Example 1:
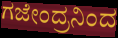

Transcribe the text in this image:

ಗಜೇಂದ್ರನಿಂದ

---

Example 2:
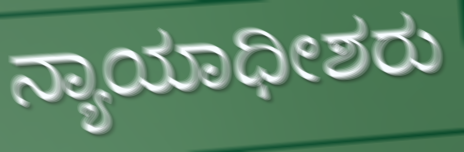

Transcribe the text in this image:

ನ್ಯಾಯಾಧೀಶರು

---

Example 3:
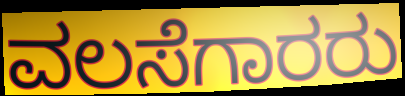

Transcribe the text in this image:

ವಲಸೆಗಾರರು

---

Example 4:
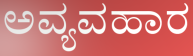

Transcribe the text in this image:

ಅವ್ಯವಹಾರ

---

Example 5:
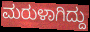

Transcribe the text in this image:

ಮರುಳಾಗಿದ್ದು